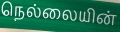
நெல்லையின்